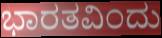
ಭಾರತವಿಂದು